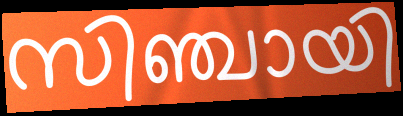
സിഞ്ചായി